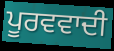
ਪੂਰਵਵਾਦੀ